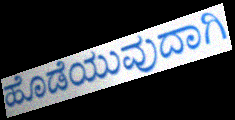
ಹೊಡೆಯುವುದಾಗಿ